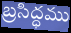
బ్రసిద్ధము